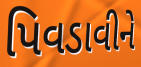
પિવડાવીને